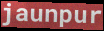
jaunpur